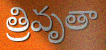
త్రివృతా